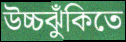
উচ্চঝুঁকিতে